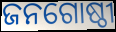
ଜନଗୋଷ୍ଠୀ